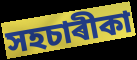
সহচাৰীকা